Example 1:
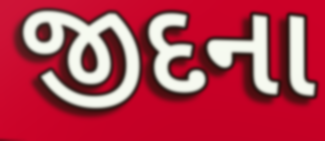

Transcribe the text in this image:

જીદના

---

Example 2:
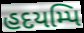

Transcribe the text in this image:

હદયમ્પિ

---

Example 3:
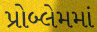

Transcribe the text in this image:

પ્રોબ્લેમમાં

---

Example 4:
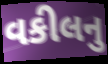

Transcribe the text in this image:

વકીલનુ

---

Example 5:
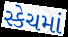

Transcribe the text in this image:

સ્કેચમાં